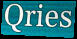
Qries